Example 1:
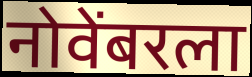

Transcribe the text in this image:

नोवेंबरला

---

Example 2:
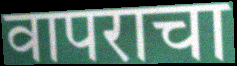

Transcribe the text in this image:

वापराचा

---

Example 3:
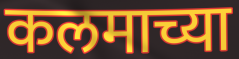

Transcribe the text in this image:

कलमाच्या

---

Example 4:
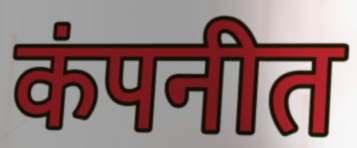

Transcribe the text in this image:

कंपनीत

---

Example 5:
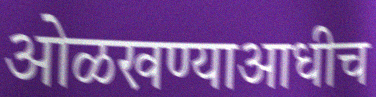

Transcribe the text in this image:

ओळखण्याआधीच